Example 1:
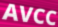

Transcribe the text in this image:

AVCC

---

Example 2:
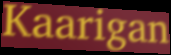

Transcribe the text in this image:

Kaarigan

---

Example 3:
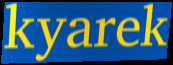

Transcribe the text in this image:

kyarek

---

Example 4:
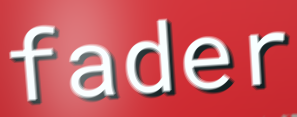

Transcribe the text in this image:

fader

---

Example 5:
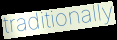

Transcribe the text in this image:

traditionally